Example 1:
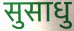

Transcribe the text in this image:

सुसाधु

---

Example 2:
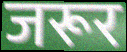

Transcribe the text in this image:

जरूर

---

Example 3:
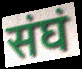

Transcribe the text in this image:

संघं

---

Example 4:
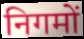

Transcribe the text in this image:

निगमों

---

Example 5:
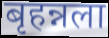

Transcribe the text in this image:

बृहन्नला